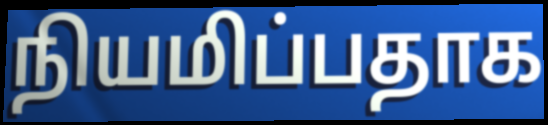
நியமிப்பதாக